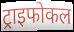
ट्राइफोकल